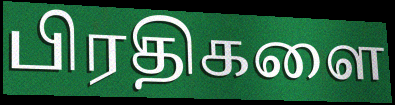
பிரதிகளை